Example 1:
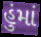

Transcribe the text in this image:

હુંમાં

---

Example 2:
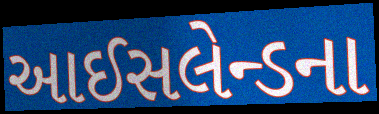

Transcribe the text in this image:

આઈસલેન્ડના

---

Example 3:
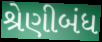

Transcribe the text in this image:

શ્રેણીબંધ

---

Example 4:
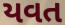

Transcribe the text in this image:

યવત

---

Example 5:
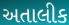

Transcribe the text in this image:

અતાલીક